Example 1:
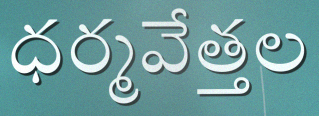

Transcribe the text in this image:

ధర్మవేత్తల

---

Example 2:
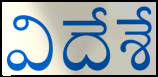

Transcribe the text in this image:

విదేశే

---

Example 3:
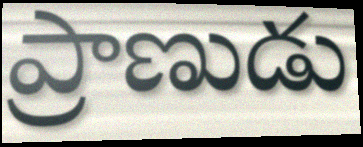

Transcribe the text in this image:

ప్రాణుడు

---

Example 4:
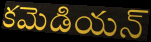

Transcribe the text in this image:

కమెడియన్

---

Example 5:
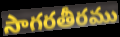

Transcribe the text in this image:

సాగరతీరము